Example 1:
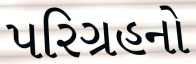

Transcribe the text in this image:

પરિગ્રહનો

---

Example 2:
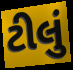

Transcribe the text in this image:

ટીલું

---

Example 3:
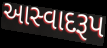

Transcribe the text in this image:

આસ્વાદરૂપ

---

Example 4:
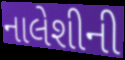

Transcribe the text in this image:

નાલેશીની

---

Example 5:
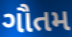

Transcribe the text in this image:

ગૌતમ